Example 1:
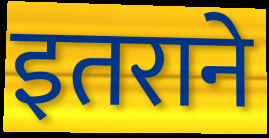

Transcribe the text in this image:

इतराने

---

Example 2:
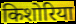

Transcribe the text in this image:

किशोरिया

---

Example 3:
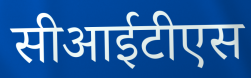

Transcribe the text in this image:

सीआईटीएस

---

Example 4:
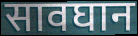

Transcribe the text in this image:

सावघान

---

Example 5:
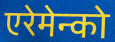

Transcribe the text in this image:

एरेमेन्को